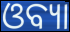
ଓବ୍ୟା